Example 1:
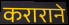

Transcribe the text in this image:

कराराने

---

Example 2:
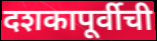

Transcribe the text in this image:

दशकापूर्वीची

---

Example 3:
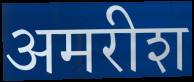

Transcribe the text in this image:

अमरीश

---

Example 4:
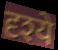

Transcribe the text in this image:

दृश्‍ये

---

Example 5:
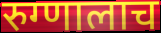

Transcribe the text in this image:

रुग्णालाच